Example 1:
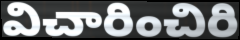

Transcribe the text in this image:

విచారించిరి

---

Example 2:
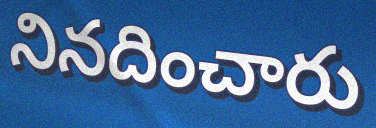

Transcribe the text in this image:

నినదించారు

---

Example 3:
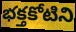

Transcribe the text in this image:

భక్తకోటిని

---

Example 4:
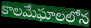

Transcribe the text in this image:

కాలమేఘాలలోన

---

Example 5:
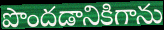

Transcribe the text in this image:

పొందడానికిగాను